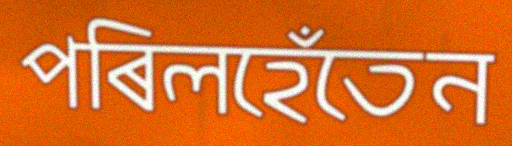
পৰিলহেঁতেন